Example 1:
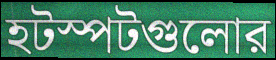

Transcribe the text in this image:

হটস্পটগুলোর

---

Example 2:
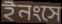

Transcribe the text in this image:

ইনংসে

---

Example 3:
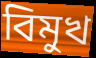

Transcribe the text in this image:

বিমুখ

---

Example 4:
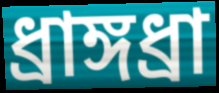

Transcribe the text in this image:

ধ্রাঙ্গধ্রা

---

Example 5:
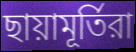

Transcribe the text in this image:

ছায়ামূর্তিরা